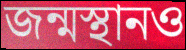
জন্মস্থানও